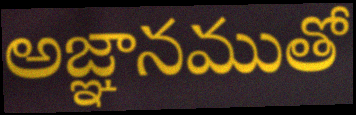
అజ్ఞానముతో